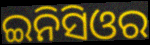
ଇନିସିଓର